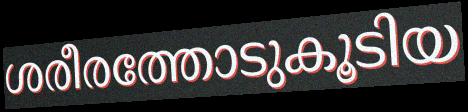
ശരീരത്തോടുകൂടിയ